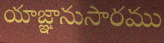
యాజ్ఞానుసారము